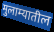
मुलाम्यातील